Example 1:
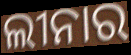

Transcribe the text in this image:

ଲୀନାର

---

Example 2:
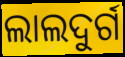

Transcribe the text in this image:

ଲାଲଦୁର୍ଗ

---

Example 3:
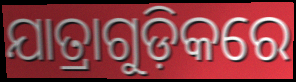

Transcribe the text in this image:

ଯାତ୍ରାଗୁଡ଼ିକରେ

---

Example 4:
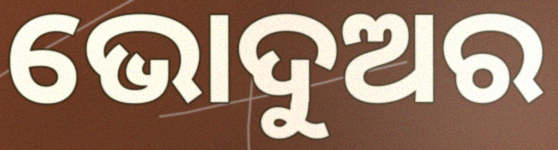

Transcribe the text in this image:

ଭୋଦୁଅର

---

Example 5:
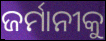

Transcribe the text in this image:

ଜର୍ମାନୀକୁ